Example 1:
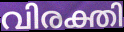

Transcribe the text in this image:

വിരക്തി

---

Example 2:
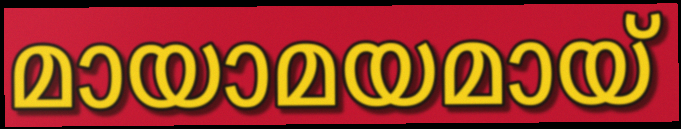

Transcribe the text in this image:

മായാമയമായ്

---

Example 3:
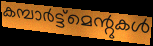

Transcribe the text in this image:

കമ്പാർട്ട്മെന്റുകൾ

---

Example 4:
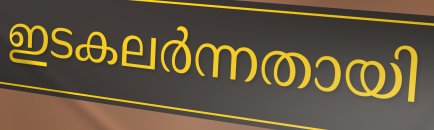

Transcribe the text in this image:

ഇടകലർന്നതായി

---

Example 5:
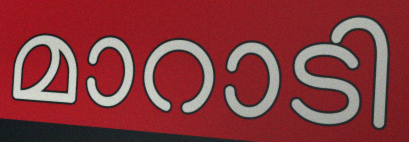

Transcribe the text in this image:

മാറാടി